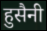
हुसैनी